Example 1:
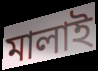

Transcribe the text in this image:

মালাই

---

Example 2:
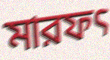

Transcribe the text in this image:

মারফৎ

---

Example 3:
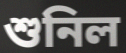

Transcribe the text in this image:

শুনিল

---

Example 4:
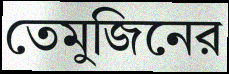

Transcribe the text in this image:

তেমুজিনের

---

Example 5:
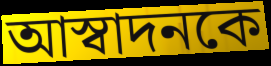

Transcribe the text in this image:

আস্বাদনকে